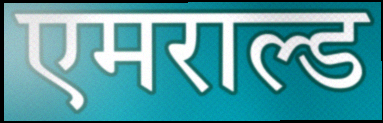
एमराल्‍ड